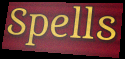
Spells